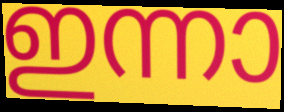
ഇന്നാ